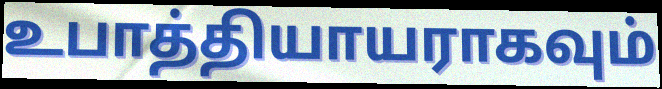
உபாத்தியாயராகவும்